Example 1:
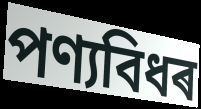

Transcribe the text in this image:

পণ্যবিধৰ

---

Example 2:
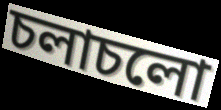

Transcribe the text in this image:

চলাচলো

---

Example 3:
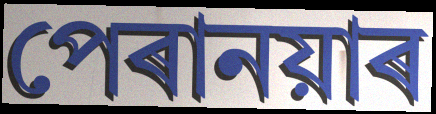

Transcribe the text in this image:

পেৰানয়াৰ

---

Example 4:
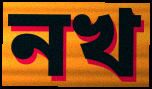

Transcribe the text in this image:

নখ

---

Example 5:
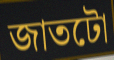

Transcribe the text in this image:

জাতটো